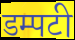
डम्पटी